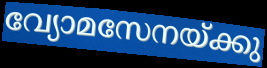
വ്യോമസേനയ്ക്കു